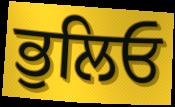
ਭੁਲਿਓ